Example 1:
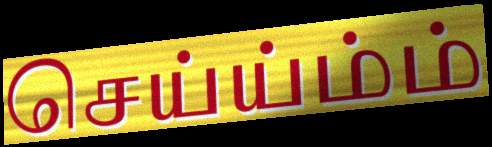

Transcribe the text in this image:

செய்ய்ம்ம்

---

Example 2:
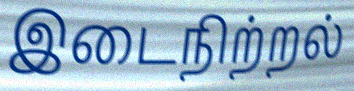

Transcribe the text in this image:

இடைநிற்றல்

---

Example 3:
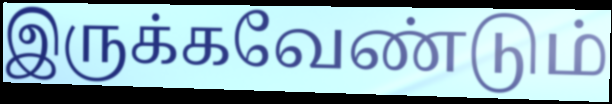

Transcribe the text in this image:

இருக்கவேண்டும்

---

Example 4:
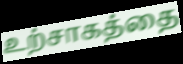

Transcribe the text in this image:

உற்சாகத்தை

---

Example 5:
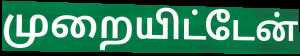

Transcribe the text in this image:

முறையிட்டேன்